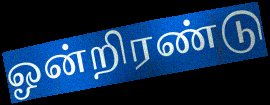
ஓன்றிரண்டு